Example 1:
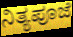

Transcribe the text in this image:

ನಿತ್ಯಪೂಜೆ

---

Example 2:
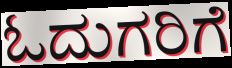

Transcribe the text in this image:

ಓದುಗರಿಗೆ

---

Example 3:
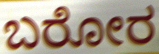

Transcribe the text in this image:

ಬರೋರ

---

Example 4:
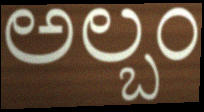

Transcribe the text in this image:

ಅಲ್ಬಂ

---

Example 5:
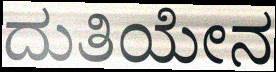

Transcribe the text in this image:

ದುತಿಯೇನ